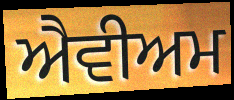
ਐਵੀਅਮ